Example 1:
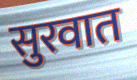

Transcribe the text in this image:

सुरवात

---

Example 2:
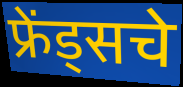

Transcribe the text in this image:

फ्रेंड्सचे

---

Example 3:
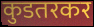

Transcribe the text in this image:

कुडतरकर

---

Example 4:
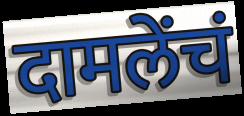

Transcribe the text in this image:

दामलेंचं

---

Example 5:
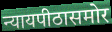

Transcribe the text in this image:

न्यायपीठासमोर